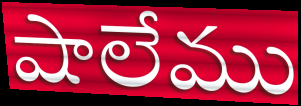
షాలేము